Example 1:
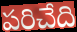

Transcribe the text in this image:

పరిచేది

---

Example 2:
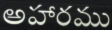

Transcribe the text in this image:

అహారము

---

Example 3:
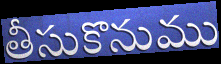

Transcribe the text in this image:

తీసుకొనుము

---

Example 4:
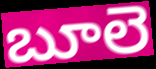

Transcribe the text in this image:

బూలె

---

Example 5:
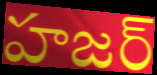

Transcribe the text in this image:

హజర్